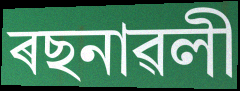
ৰছনাৱলী